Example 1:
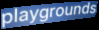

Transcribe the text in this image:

playgrounds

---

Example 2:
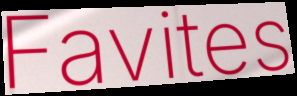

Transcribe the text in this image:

Favites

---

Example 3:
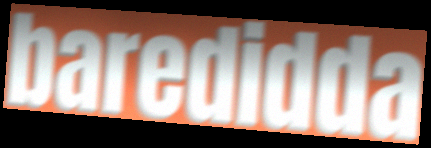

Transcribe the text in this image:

baredidda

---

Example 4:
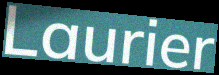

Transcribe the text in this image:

Laurier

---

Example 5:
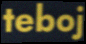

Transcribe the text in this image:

teboj